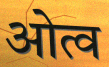
ओत्व